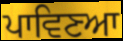
ਪਾਵਿਣਆ